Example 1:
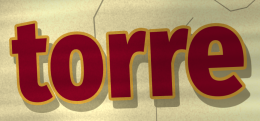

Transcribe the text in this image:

torre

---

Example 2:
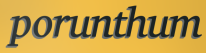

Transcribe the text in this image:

porunthum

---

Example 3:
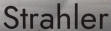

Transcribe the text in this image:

Strahler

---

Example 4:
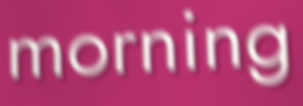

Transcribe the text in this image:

morning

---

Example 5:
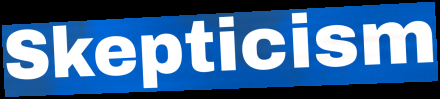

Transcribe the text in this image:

Skepticism